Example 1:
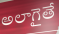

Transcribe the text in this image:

అలాగైతే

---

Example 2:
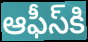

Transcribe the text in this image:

ఆఫీస్‌కి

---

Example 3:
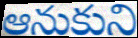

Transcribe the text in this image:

ఆనుకుని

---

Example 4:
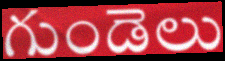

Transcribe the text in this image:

గుండెలు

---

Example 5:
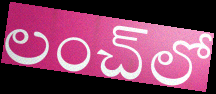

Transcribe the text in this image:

లంచ్‌లో